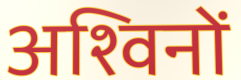
अश्विनों